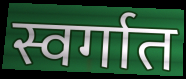
स्वर्गात